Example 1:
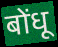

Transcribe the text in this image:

बोंधू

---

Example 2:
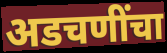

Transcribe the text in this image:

अडचणींचा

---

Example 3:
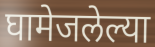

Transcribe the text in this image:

घामेजलेल्या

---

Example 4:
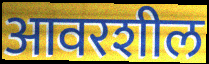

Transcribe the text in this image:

आवरशील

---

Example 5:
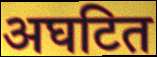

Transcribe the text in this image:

अघटित